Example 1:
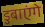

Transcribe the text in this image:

डुबाएंगे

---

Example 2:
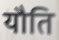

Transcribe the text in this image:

यौति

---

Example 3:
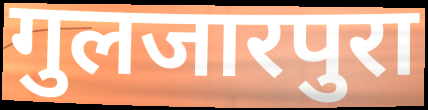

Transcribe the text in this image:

गुलजारपुरा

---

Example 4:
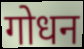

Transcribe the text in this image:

गोधन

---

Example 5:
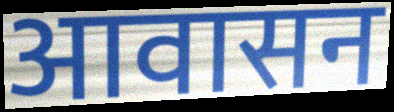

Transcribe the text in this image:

आवासन